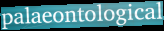
palaeontological